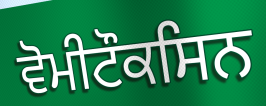
ਵੋਮੀਟੌਕਸਿਨ